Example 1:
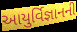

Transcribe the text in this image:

આયુર્વિજ્ઞાનની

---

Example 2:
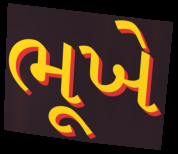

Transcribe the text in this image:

ભૂખે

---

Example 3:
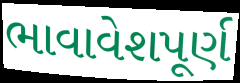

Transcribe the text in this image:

ભાવાવેશપૂર્ણ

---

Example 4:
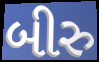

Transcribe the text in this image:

બીરુ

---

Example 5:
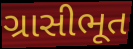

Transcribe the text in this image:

ગ્રાસીભૂત